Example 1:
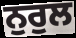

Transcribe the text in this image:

ਨੁਰੁਲ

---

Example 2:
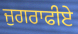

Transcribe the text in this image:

ਜੁਗਰਾਫੀਏ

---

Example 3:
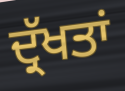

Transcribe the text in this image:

ਦ੍ਰੱਖਤਾਂ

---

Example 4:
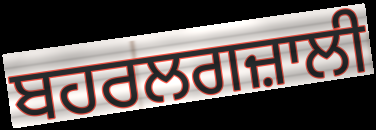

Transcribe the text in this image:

ਬਹਰਲਗਜ਼ਾਲੀ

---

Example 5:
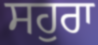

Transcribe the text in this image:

ਸਹੁਰਾ